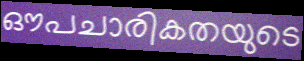
ഔപചാരികതയുടെ